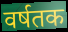
वर्षतक